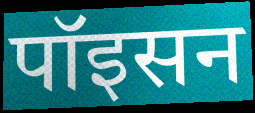
पॉइसन